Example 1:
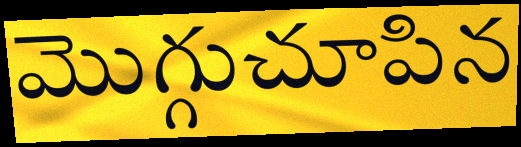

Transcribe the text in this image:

మొగ్గుచూపిన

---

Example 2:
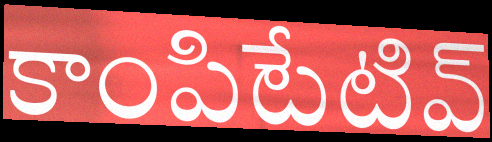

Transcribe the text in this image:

కాంపిటేటివ్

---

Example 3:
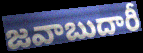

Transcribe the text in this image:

జవాబుదారీ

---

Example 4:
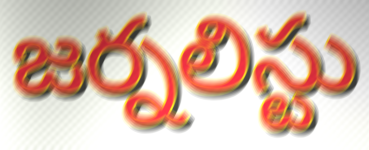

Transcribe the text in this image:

జర్నలిస్టు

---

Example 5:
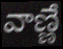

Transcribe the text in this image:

వాణ్ణే